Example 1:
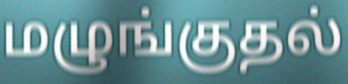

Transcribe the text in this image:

மழுங்குதல்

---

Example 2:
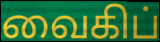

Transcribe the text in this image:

வைகிப்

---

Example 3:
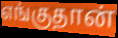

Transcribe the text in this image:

எங்குதான்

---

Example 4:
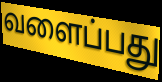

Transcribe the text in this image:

வளைப்பது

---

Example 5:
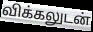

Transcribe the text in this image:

விக்கலுடன்